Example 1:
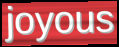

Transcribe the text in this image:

joyous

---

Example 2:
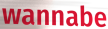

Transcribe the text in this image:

wannabe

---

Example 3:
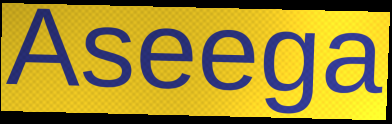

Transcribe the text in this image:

Aseega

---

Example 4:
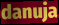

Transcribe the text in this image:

danuja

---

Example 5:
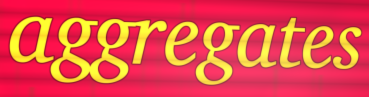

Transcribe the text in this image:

aggregates